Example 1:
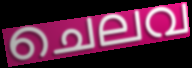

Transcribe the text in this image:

ചെലവ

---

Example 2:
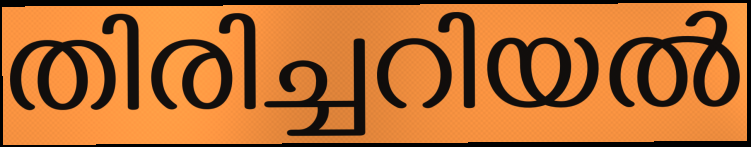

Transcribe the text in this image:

തിരിച്ചറിയൽ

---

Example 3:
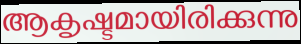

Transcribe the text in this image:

ആകൃഷ്ടമായിരിക്കുന്നു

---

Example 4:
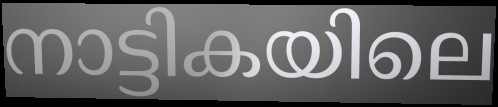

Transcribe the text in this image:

നാട്ടികയിലെ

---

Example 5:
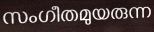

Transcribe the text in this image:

സംഗീതമുയരുന്ന